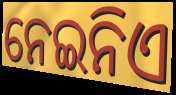
ନେଇନିଏ